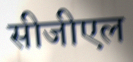
सीजीएल